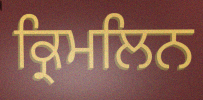
ਕ੍ਰਿਮਲਿਨ